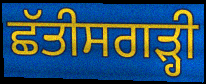
ਛੱਤੀਸਗੜ੍ਹੀ